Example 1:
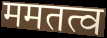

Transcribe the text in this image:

ममतत्व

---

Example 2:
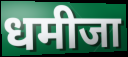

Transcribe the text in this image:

धमीजा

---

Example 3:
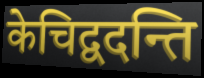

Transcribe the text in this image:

केचिद्वदन्ति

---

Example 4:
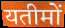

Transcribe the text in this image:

यतीमों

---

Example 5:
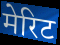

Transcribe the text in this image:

मेरिट